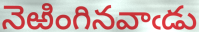
నెఱింగినవాఁడు